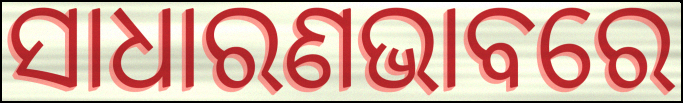
ସାଧାରଣଭାବରେ